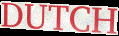
DUTCH